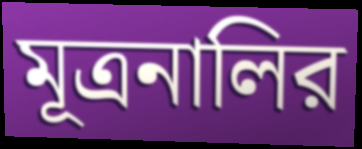
মূত্রনালির